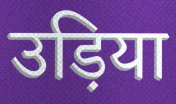
उड़िया